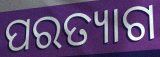
ପରତ୍ୟାଗ